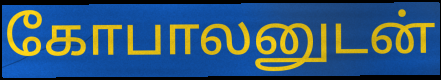
கோபாலனுடன்